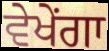
ਵੇਖੇਂਗਾ